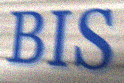
BIS